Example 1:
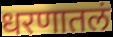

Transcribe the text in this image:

धरणातलं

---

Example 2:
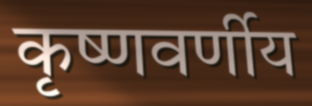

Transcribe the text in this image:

कृष्णवर्णीय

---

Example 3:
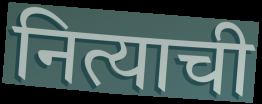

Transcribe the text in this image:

नित्याची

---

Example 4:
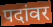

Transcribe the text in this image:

पदांवर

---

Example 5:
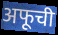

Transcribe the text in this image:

अफूची